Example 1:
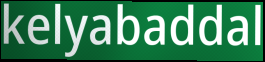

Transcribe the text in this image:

kelyabaddal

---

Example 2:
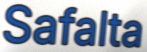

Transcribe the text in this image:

Safalta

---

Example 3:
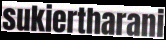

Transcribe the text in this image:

sukiertharani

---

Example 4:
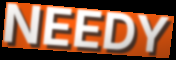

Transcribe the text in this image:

NEEDY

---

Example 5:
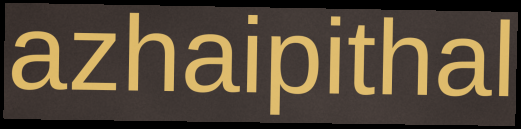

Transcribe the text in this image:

azhaipithal